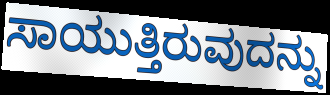
ಸಾಯುತ್ತಿರುವುದನ್ನು